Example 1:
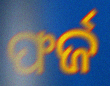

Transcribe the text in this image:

ଫର୍ଜ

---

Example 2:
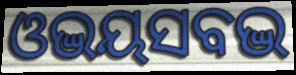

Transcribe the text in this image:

ଓଦ୍ଭୟସବଦ୍ଭ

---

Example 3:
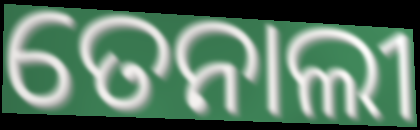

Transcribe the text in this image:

ତେନାଲୀ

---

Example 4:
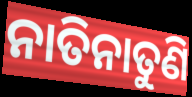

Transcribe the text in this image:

ନାତିନାତୁଣି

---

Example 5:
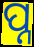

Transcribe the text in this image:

ପ୍ନ